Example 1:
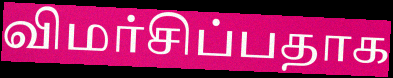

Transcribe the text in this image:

விமர்சிப்பதாக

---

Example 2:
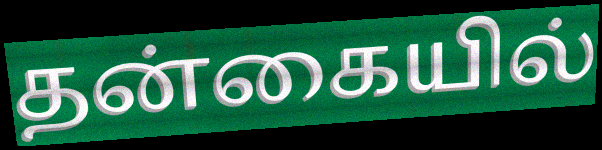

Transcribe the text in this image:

தன்கையில்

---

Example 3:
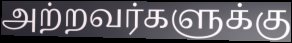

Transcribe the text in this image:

அற்றவர்களுக்கு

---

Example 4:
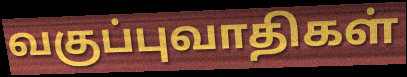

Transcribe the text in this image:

வகுப்புவாதிகள்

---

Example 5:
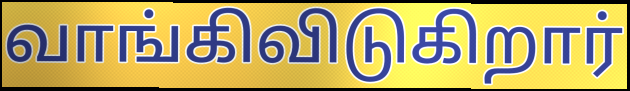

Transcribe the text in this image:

வாங்கிவிடுகிறார்